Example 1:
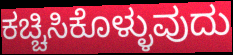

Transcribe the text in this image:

ಕಚ್ಚಿಸಿಕೊಳ್ಳುವುದು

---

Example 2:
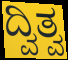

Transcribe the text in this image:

ದ್ವಿತ್ವ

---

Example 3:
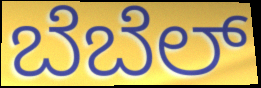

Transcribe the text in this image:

ಬೆಬೆಲ್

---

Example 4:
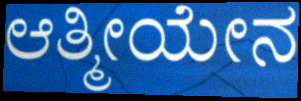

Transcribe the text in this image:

ಆತ್ಮೀಯೇನ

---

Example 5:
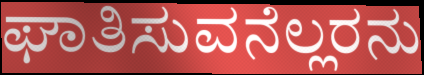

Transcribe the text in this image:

ಘಾತಿಸುವನೆಲ್ಲರನು